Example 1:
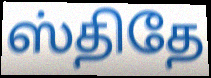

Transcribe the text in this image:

ஸ்திதே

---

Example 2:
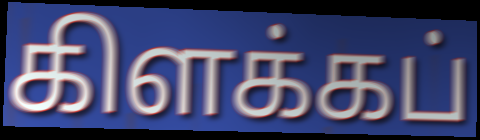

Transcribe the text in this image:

கிளக்கப்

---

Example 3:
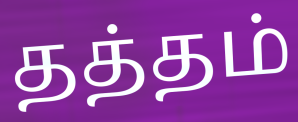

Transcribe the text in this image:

தத்தம்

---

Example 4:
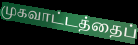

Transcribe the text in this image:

முகவாட்டத்தைப்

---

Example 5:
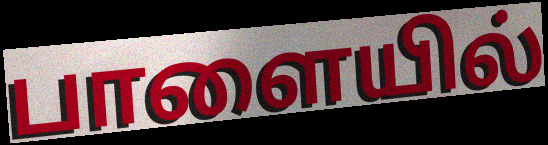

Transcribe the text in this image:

பாளையில்